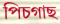
পিচগাছ